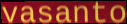
vasanto